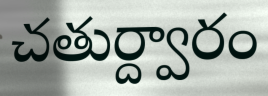
చతుర్ద్వారం